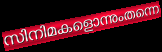
സിനിമകളൊന്നുംതന്നെ